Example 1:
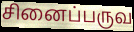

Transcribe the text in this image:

சினைப்பருவ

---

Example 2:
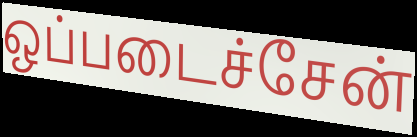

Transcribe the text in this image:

ஒப்படைச்சேன்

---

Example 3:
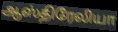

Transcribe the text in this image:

ஆஸ்திரேலியா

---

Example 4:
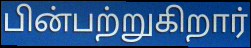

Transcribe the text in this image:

பின்பற்றுகிறார்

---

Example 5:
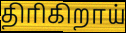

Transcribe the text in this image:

திரிகிறாய்